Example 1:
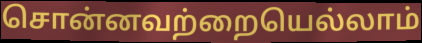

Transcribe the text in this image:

சொன்னவற்றையெல்லாம்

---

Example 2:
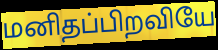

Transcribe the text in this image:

மனிதப்பிறவியே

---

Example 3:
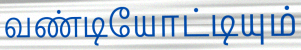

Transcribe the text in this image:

வண்டியோட்டியும்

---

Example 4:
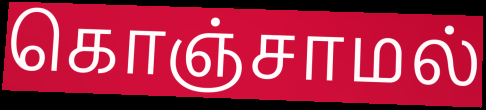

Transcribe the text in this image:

கொஞ்சாமல்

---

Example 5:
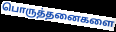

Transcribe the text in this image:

பொருத்தனைகளை